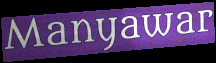
Manyawar